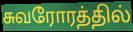
சுவரோரத்தில்